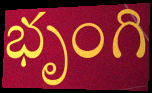
భృంగి